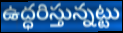
ఉద్ధరిస్తున్నట్టు